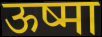
ऊष्‍मा